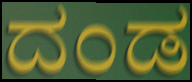
ದಂಡ